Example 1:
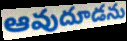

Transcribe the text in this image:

ఆవుదూడను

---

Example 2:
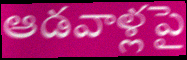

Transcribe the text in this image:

ఆడవాళ్లపై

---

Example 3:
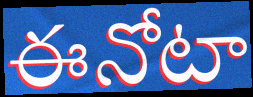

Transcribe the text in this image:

ఈనోటా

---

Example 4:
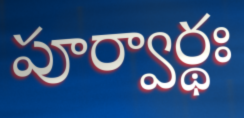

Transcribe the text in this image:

పూర్వార్థః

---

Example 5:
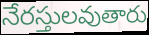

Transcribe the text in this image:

నేరస్తులవుతారు